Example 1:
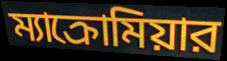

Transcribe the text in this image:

ম্যাক্রোমিয়ার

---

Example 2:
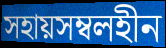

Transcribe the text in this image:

সহায়সম্বলহীন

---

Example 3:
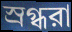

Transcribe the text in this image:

স্রগ্ধরা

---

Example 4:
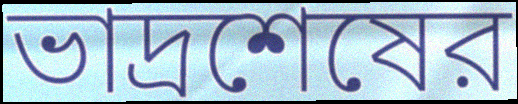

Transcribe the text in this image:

ভাদ্রশেষের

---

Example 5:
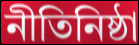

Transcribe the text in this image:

নীতিনিষ্ঠা